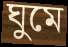
ঘুমে